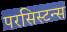
परसिस्टन्स